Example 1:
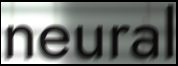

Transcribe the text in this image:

neural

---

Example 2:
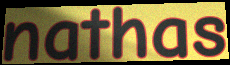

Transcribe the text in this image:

nathas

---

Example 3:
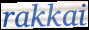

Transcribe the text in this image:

rakkai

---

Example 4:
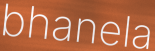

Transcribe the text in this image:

bhanela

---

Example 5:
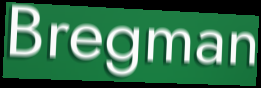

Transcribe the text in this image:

Bregman